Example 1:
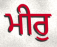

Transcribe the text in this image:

ਮੀਰੁ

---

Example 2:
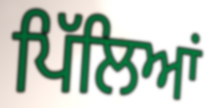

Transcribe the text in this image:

ਪਿੱਲਿਆਂ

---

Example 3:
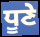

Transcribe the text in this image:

ਧੂਣੇ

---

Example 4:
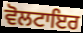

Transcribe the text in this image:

ਵੋਲਟਾਇਰ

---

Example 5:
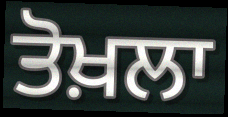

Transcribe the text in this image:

ਤੋਖ਼ਲਾ